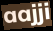
aajji